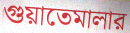
গুয়াতেমালার